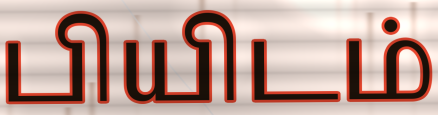
பியிடம்